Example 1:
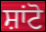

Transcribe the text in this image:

ਸ਼ਾਂਟੋ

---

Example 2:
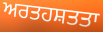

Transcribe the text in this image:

ਅਰਤਹਸ਼ਤਤਾ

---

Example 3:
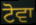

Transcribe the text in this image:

ਟੋਵਾ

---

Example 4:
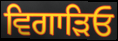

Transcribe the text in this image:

ਵਿਗਾੜਿਓ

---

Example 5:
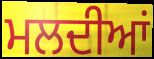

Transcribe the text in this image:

ਮਲਦੀਆਂ